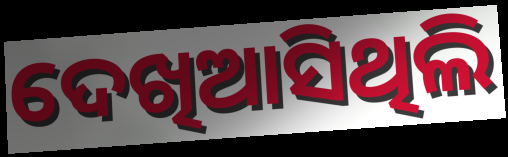
ଦେଖିଆସିଥିଲି